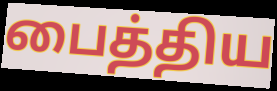
பைத்திய